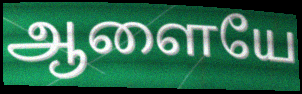
ஆளையே